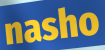
nasho